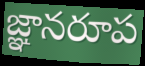
జ్ఞానరూప